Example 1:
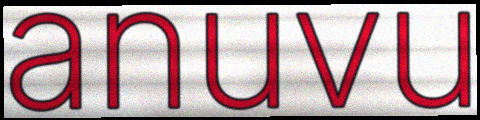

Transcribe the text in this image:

anuvu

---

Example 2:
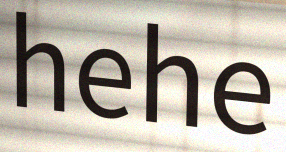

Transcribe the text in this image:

hehe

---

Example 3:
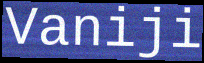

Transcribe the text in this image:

Vaniji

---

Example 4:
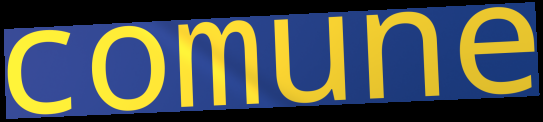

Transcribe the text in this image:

comune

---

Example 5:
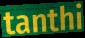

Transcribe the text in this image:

tanthi